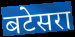
बटेसरा